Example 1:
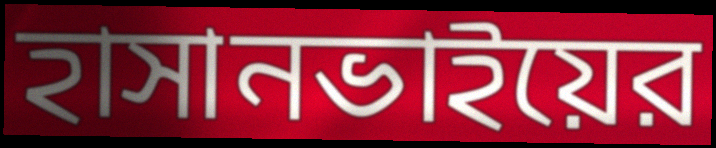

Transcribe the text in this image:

হাসানভাইয়ের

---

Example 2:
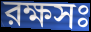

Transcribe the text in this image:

রক্ষসঃ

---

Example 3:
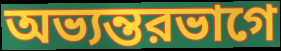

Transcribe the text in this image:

অভ্যন্তরভাগে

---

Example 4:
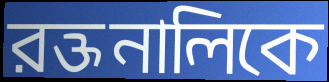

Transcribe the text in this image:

রক্তনালিকে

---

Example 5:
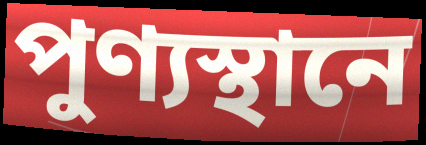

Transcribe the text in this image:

পুণ্যস্থানে